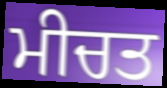
ਮੀਚਤ